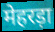
मेहरड़ा